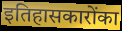
इतिहासकारोंका